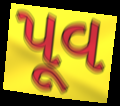
પૂવ